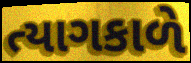
ત્યાગકાળે